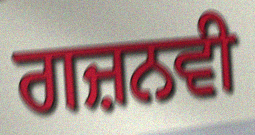
ਗਜ਼ਨਵੀ